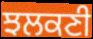
ਝਲਕਣੀ